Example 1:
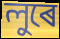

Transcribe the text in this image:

লুৰে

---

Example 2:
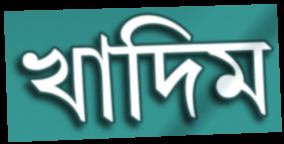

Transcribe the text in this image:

খাদিম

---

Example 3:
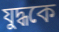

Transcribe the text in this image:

যুদ্ধকে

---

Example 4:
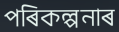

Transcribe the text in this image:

পৰিকল্পনাৰ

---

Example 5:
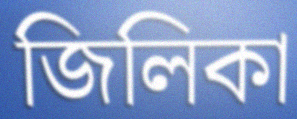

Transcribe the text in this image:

জিলিকা